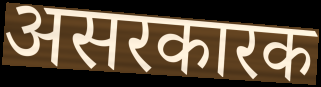
असरकारक